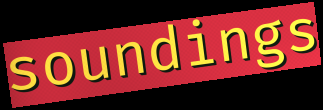
soundings